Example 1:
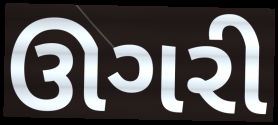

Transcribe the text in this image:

ઊગરી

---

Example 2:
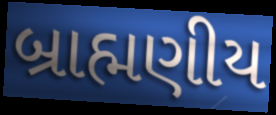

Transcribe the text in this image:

બ્રાહ્મણીય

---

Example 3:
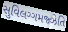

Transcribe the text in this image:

સુવિલગ્ગમજ્ઝેતિ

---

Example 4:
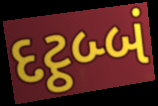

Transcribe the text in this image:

દટ્ઠબ્બં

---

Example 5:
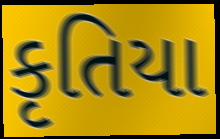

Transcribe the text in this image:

કૃતિયા